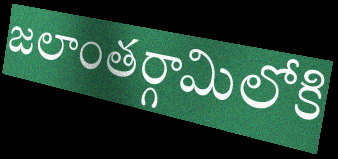
జలాంతర్గామిలోకి